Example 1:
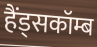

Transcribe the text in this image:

हैंड्सकॉम्ब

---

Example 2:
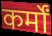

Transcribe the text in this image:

कर्मों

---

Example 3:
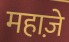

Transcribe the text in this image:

महाज़े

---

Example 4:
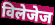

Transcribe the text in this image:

विलेजेज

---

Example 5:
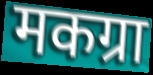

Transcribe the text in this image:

मकग्रा